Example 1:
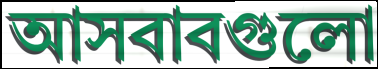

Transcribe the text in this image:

আসবাবগুলো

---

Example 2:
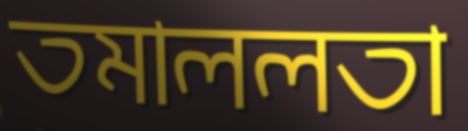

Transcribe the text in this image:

তমাললতা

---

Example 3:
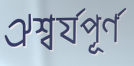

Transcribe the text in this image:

ঐশ্বর্যপূর্ণ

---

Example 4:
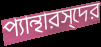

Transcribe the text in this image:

প্যান্থারস্‌দের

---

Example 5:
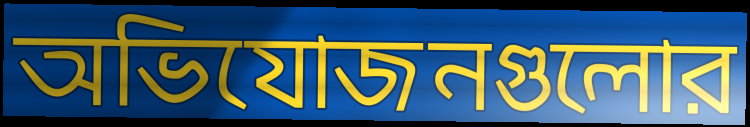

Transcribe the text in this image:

অভিযোজনগুলোর